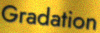
Gradation